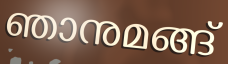
ഞാനുമങ്ങ്